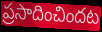
ప్రసాదించిందట